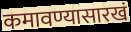
कमावण्यासारखं